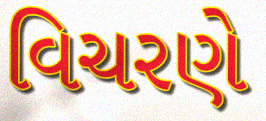
વિચરણે